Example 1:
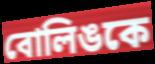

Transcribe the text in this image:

বোলিঙকে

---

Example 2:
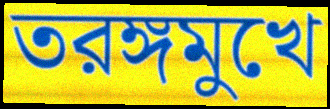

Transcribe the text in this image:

তরঙ্গমুখে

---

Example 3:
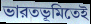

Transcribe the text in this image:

ভারতভূমিতেই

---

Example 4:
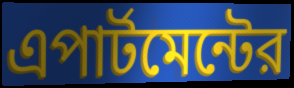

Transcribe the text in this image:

এপার্টমেন্টের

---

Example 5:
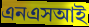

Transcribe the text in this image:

এনএসআই